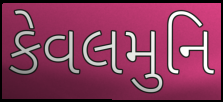
કેવલમુનિ